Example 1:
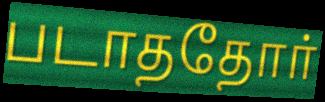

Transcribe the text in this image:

படாததோர்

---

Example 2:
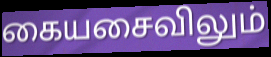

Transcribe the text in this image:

கையசைவிலும்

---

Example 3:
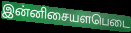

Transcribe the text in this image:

இன்னிசையளபெடை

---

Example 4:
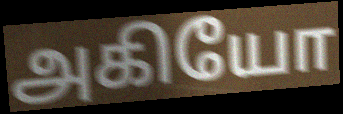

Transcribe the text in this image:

அகியோ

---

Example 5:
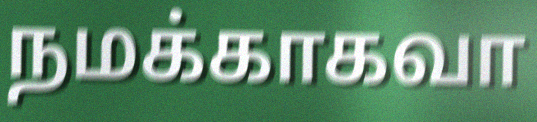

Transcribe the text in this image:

நமக்காகவா